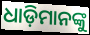
ଧାଡ଼ିମାନଙ୍କୁ